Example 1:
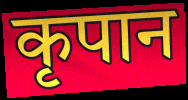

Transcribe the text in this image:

कृपान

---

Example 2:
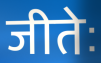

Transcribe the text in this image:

जीतेः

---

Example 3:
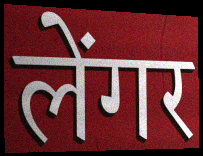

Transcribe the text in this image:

लेंगर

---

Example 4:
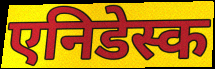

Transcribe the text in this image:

एनिडेस्क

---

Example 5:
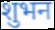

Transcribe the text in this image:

शुभन